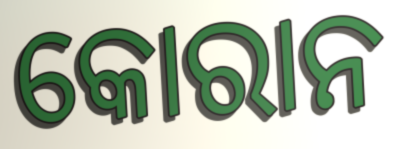
କୋରାନ